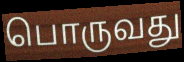
பொருவது